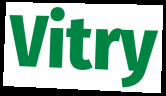
Vitry